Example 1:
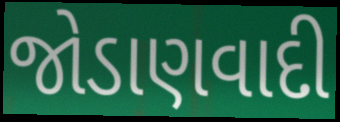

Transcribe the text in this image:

જોડાણવાદી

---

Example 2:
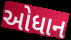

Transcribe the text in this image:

ઓધાન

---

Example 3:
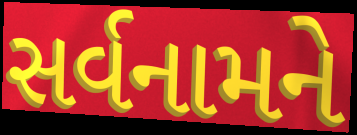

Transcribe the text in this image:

સર્વનામને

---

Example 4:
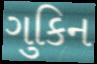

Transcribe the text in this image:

ગુકિન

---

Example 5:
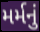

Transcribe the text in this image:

મર્મનું